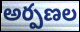
అర్పణల